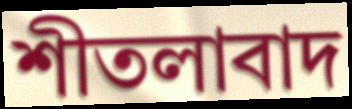
শীতলাবাদ